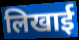
लिखाई